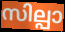
സില്പാ